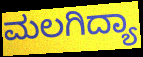
ಮಲಗಿದ್ಯಾ